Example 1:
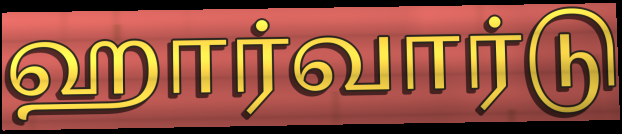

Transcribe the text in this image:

ஹார்வார்டு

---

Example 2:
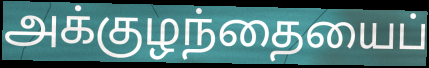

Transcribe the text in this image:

அக்குழந்தையைப்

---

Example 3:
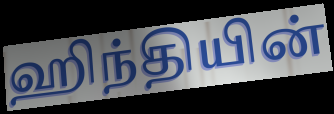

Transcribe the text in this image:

ஹிந்தியின்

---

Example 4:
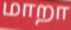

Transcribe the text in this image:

மாறா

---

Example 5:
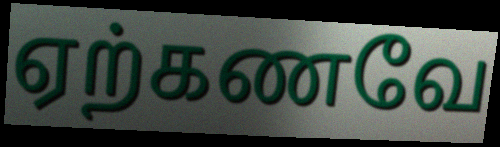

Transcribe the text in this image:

ஏற்கணவே